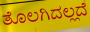
ತೊಲಗಿದಲ್ಲದೆ